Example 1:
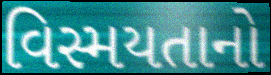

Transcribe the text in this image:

વિસ્મયતાનો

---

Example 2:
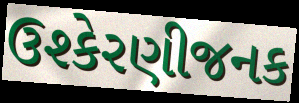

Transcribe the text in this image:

ઉશ્કેરણીજનક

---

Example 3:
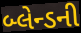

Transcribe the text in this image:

બ્લેન્ડની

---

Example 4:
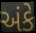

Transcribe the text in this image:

અંકે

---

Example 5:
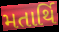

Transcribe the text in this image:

મતાર્થિ